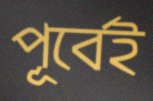
পূৰ্বেই